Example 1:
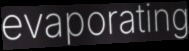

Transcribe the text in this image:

evaporating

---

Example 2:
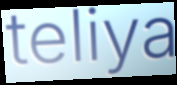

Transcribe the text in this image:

teliya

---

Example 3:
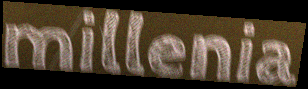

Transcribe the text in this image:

millenia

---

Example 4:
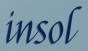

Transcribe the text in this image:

insol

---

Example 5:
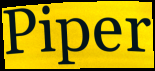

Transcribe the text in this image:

Piper